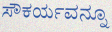
ಸೌಕರ್ಯವನ್ನೂ